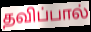
தவிப்பால்